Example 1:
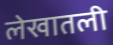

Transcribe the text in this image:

लेखातली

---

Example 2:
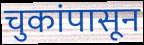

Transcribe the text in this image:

चुकांपासून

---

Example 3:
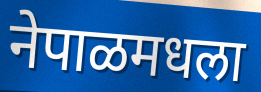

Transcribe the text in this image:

नेपाळमधला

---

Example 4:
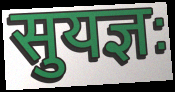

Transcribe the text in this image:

सुयज्ञः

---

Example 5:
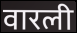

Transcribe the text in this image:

वारली